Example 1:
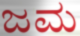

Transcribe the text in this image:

ಜಮ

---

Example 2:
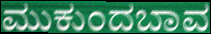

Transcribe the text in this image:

ಮುಕುಂದಬಾವ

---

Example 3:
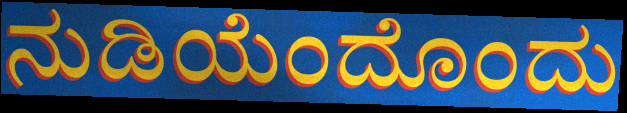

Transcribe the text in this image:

ನುಡಿಯೆಂದೊಂದು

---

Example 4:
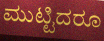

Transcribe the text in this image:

ಮುಟ್ಟಿದರೂ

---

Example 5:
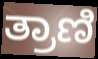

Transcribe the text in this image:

ತ್ರಾಣಿ